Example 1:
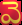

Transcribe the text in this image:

వె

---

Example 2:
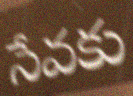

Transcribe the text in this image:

సేవకు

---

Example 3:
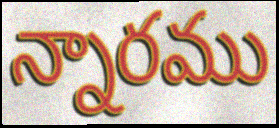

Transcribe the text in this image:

న్నారము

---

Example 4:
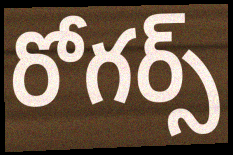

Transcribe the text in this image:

రోగర్స్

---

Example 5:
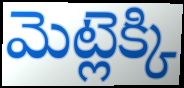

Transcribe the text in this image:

మెట్లెక్కి